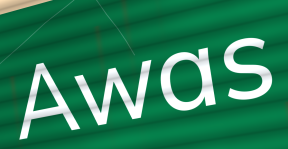
Awas